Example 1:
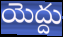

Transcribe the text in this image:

యెద్దు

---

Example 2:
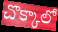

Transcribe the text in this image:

చొక్కాలో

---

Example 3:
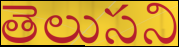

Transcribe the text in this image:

తెలుసని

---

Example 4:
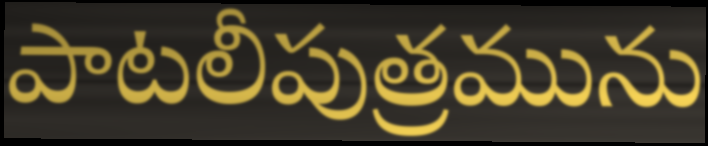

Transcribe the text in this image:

పాటలీపుత్రమును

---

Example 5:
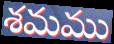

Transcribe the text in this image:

శమము